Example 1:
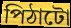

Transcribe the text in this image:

পিঠাটো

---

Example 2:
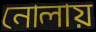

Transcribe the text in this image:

নোলায়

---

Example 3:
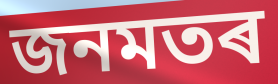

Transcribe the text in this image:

জনমতৰ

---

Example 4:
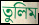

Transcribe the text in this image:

তুলিম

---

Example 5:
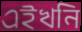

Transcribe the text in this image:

এইখনি